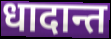
धादान्त